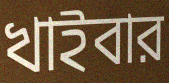
খাইবার